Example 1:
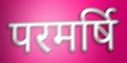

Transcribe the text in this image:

परमर्षि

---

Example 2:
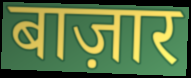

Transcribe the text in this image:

बाज़ार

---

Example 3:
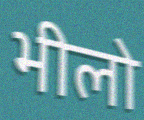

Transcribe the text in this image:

भीलो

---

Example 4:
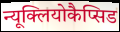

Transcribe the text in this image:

न्यूक्लियोकैप्सिड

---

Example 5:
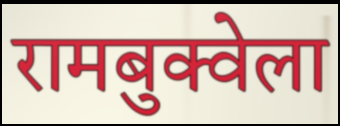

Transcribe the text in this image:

रामबुक्वेला